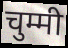
चुम्मी